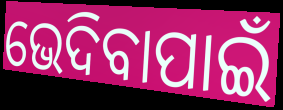
ଭେଦିବାପାଇଁ